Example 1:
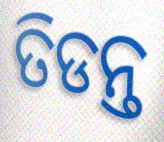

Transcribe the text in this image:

ତିଡନ୍ତ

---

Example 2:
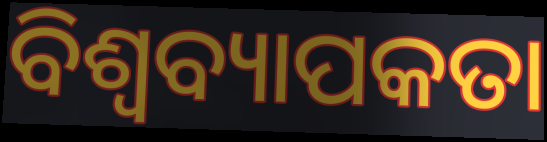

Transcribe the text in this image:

ବିଶ୍ୱବ୍ୟାପକତା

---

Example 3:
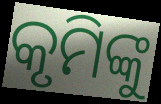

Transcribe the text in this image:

କୃମିଙ୍କୁ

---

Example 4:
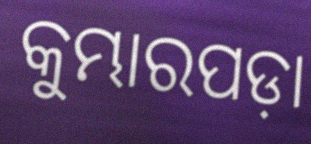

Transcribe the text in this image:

କୁମ୍ଭାରପଡ଼ା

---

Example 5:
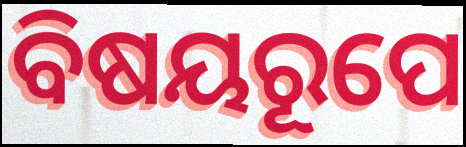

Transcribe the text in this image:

ବିଷୟରୂପେ